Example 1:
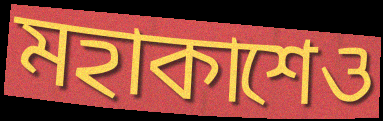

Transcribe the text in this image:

মহাকাশেও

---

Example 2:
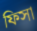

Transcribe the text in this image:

ফিসা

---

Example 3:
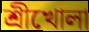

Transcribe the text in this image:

শ্রীখোলা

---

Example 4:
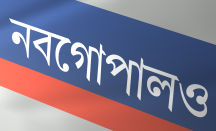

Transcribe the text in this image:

নবগোপালও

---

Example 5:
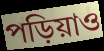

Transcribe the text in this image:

পড়িয়াও